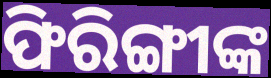
ଫିରିଙ୍ଗୀଙ୍କ